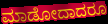
ಮಾಡೋದಾದರೂ